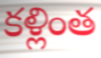
కళ్లింత